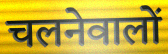
चलनेवालों